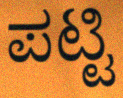
ಪಟ್ಟಿ